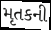
મૃતકની